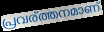
പ്രവര്ത്തനമാണ്